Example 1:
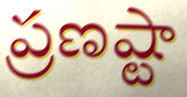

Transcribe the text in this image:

ప్రణష్టా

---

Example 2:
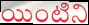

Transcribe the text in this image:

యింటిని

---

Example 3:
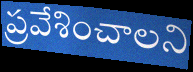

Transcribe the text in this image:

ప్రవేశించాలని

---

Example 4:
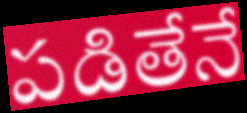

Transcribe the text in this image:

పడితేనే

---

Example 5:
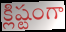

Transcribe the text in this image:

క్లిష్టంగా